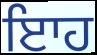
ਇਾਹ